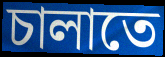
চালাতে